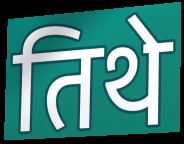
तिथे